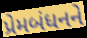
પ્રેમબંધનને